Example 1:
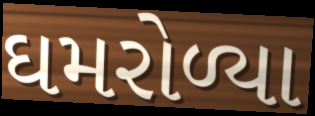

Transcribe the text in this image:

ઘમરોળ્યા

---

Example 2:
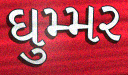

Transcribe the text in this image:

ઘુમ્મર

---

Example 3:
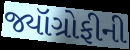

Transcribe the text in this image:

જ્યૉગ્રોફીની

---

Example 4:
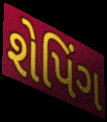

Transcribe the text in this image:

શેપિંગ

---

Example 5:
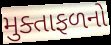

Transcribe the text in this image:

મુક્તાફળનો